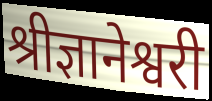
श्रीज्ञानेश्वरी